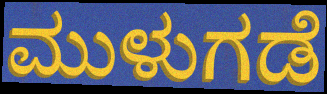
ಮುಳುಗಡೆ